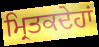
ਮ੍ਰਿਤਕਦੇਹਾਂ